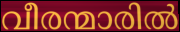
വീരന്മാരിൽ